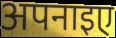
अपनाइए